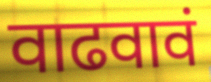
वाढवावं